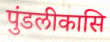
पुंडलीकासि